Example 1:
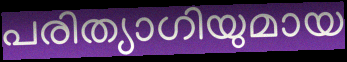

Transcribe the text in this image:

പരിത്യാഗിയുമായ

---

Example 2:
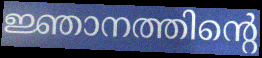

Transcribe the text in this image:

ജ്ഞാനത്തിന്റെ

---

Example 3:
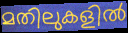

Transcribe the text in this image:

മതിലുകളിൽ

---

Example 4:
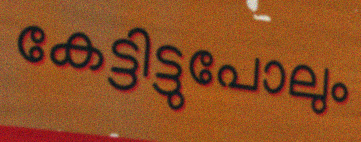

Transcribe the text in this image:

കേട്ടിട്ടുപോലും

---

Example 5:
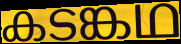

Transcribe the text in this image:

കടങ്കഥ